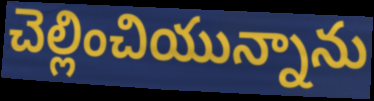
చెల్లించియున్నాను